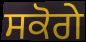
ਸਕੋਗੇ